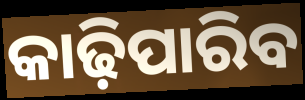
କାଢ଼ିପାରିବ